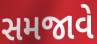
સમજાવે